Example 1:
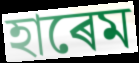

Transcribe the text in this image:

হাৰেম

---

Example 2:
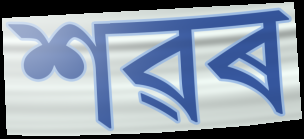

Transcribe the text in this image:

শৱৰ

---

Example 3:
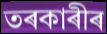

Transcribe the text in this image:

তৰকাৰীৰ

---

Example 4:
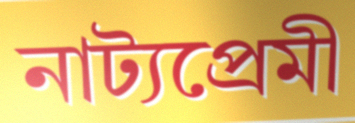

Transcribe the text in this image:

নাট্যপ্ৰেমী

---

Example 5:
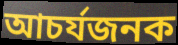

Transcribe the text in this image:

আচৰ্যজনক